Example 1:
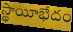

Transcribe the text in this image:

స్థాయీభేదం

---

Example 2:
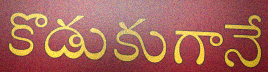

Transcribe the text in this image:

కొడుకుగానే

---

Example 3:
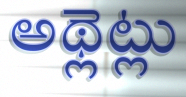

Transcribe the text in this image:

అథ్లెట్లు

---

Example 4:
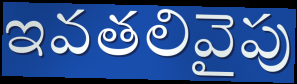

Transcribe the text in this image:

ఇవతలివైపు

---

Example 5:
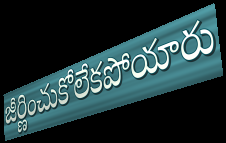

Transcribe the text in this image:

జీర్ణించుకోలేకపోయారు